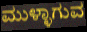
ಮುಳ್ಳಾಗುವ